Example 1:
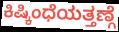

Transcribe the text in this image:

ಕಿಷ್ಕಿಂಧೆಯತ್ತಣ್ಗೆ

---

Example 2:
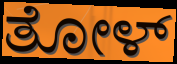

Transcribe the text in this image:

ತೋಳ್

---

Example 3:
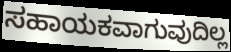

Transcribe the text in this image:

ಸಹಾಯಕವಾಗುವುದಿಲ್ಲ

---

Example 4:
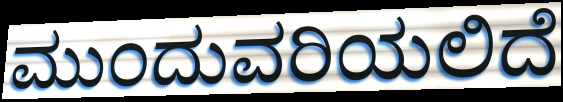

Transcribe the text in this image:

ಮುಂದುವರಿಯಲಿದೆ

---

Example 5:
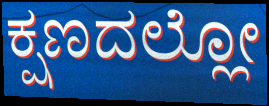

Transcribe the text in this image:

ಕ್ಷಣದಲ್ಲೋ